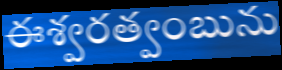
ఈశ్వరత్వంబును